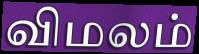
விமலம்